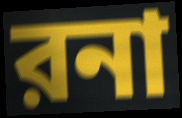
রনা